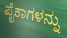
ಪೈಕಾಗಳನ್ನು